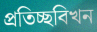
প্ৰতিচ্ছবিখন